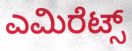
ಎಮಿರೆಟ್ಸ್